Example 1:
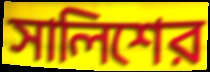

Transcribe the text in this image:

সালিশের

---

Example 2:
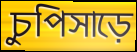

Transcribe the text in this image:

চুপিসাড়ে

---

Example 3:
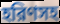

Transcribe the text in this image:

হরিণসহ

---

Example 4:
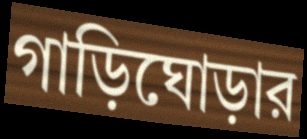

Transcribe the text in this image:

গাড়িঘোড়ার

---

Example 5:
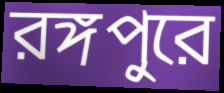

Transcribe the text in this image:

রঙ্গপুরে